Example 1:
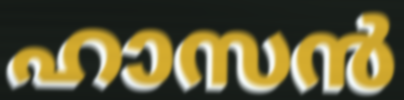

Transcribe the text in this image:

ഹാസൻ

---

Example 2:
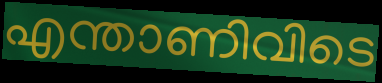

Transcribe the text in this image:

എന്താണിവിടെ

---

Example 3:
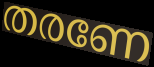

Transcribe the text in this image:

തരണേ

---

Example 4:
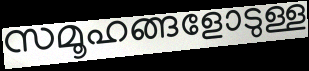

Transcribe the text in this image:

സമൂഹങ്ങളോടുള്ള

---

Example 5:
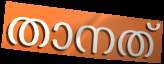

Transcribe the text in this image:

താനത്